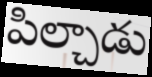
పిల్చాడు